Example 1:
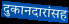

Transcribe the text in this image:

दुकानदारांसह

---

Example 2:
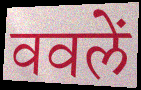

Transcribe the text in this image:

ववलें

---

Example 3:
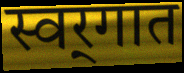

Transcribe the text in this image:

स्वर्गात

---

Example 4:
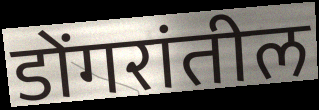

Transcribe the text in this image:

डोंगरांतील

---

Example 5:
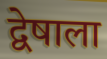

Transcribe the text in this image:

द्वेषाला